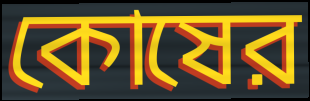
কোষের